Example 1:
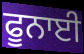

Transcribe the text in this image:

ਫੂਨਾਈ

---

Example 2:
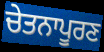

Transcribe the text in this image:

ਚੇਤਨਾਪੂਰਣ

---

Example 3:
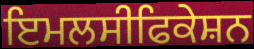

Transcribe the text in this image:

ਇਮਲਸੀਫਿਕੇਸ਼ਨ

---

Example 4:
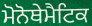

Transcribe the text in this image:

ਮੋਨੋਥੇਮੈਟਿਕ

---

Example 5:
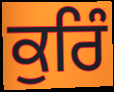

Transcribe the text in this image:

ਕੁਰਿੰ